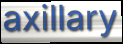
axillary